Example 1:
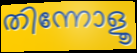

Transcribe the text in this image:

തിന്നോളൂ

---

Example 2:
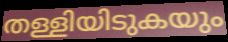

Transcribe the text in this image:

തള്ളിയിടുകയും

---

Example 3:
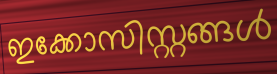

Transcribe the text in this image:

ഇക്കോസിസ്റ്റങ്ങൾ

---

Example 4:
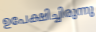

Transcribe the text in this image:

ഉപേക്ഷിച്ചിരുന്നു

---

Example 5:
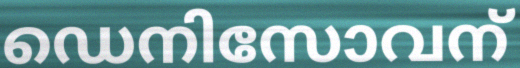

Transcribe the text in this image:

ഡെനിസോവന്